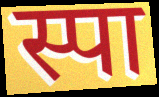
स्पा